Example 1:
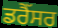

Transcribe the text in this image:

ਡਰੈੱਸਰ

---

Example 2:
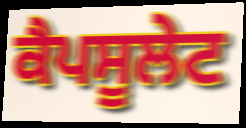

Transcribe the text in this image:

ਕੈਪਸੂਲੇਟ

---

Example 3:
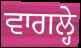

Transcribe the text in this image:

ਵਾਗਲ੍ਹੇ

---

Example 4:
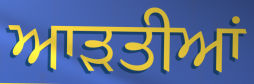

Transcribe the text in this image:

ਆਡ਼ਤੀਆਂ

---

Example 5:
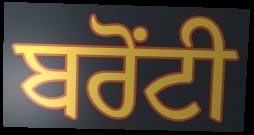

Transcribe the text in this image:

ਬਰੋਂਟੀ